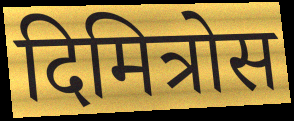
दिमित्रोस